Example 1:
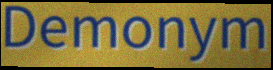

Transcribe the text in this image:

Demonym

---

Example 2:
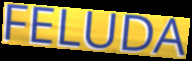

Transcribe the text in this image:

FELUDA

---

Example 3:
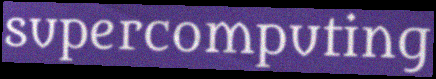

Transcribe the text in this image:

supercomputing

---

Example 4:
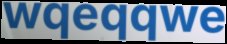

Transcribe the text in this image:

wqeqqwe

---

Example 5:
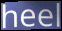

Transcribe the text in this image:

heel